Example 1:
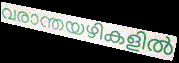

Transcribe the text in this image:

വരാന്തയഴികളിൽ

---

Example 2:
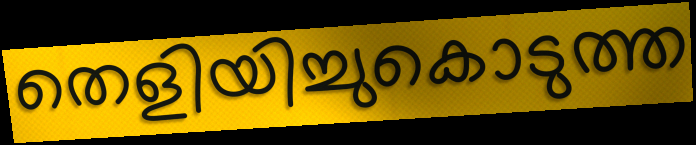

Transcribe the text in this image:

തെളിയിച്ചുകൊടുത്ത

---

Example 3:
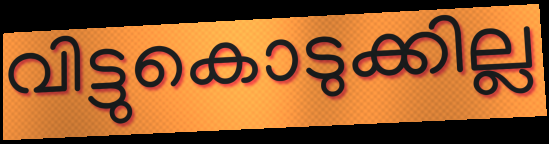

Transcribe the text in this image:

വിട്ടുകൊടുക്കില്ല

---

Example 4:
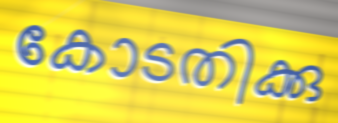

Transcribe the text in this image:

കോടതിക്കു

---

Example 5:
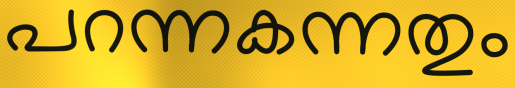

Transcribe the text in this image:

പറന്നകന്നതും